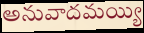
అనువాదమయ్యి